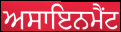
ਅਸਾਇਨਮੈਂਟ